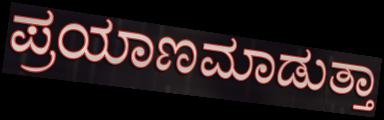
ಪ್ರಯಾಣಮಾಡುತ್ತಾ